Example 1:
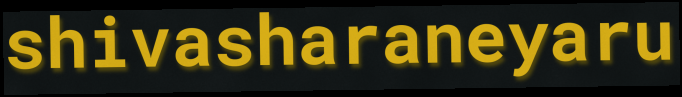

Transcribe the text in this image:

shivasharaneyaru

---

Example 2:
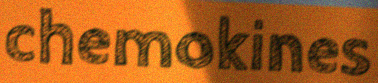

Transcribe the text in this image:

chemokines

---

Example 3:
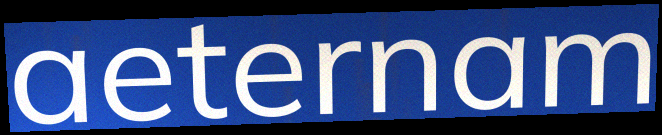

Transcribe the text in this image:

aeternam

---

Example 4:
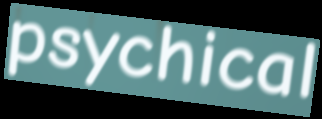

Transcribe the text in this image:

psychical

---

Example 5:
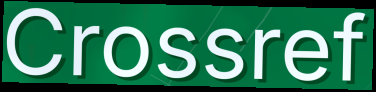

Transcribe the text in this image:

Crossref